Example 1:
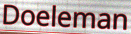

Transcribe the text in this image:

Doeleman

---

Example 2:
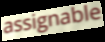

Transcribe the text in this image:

assignable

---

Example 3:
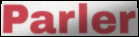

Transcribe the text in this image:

Parler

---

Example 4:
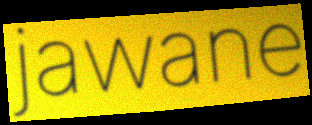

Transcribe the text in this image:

jawane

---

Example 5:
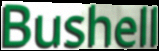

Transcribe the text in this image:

Bushell